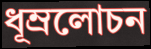
ধূম্রলোচন